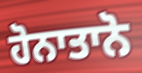
ਹੋਨਾਤਾਨੋ